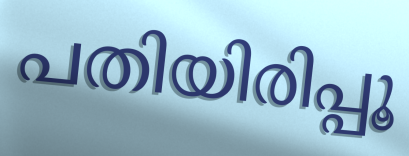
പതിയിരിപ്പൂ